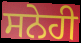
ਸਨੇਹੀ